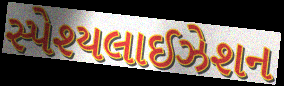
સ્પેશ્યલાઈઝેશન